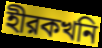
হীরকখনি